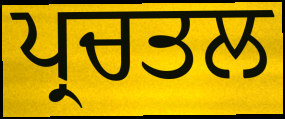
ਪ੍ਰਚਤਲ